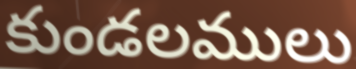
కుండలములు